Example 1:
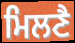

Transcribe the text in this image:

ਮਿਲਣੈ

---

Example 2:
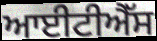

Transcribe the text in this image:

ਆਈਟੀਐੱਸ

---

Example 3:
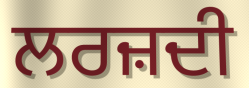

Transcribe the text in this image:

ਲਰਜ਼ਦੀ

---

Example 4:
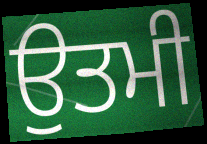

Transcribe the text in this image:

ਉਤਮੀ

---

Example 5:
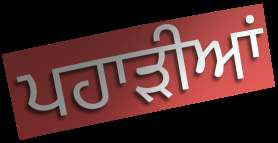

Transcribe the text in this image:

ਪਹਾਡ਼ੀਆਂ